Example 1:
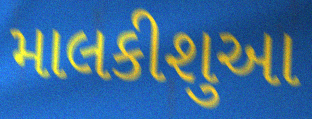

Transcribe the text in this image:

માલકીશુઆ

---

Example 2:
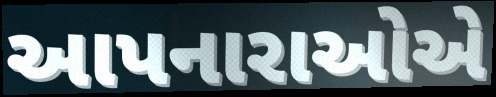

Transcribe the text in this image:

આપનારાઓએ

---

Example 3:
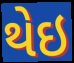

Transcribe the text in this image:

થેઇ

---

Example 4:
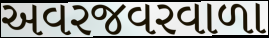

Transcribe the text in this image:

અવરજવરવાળા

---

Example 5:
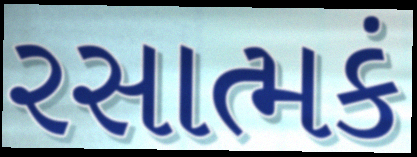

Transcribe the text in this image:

રસાત્મકં